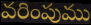
వరింపుము